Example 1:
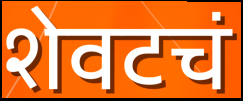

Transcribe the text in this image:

शेवटचं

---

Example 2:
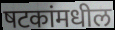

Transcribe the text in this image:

षटकांमधील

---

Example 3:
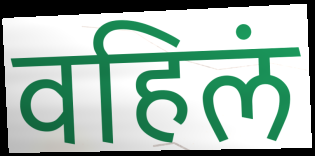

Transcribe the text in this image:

वहिलं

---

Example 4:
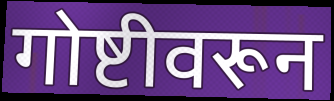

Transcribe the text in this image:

गोष्टीवरून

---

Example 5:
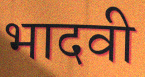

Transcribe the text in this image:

भादवी